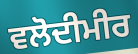
ਵਲੋਦੀਮੀਰ